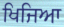
ਖਿਜਿਆ